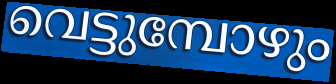
വെട്ടുമ്പോഴും